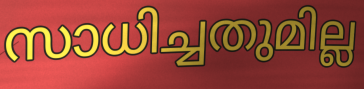
സാധിച്ചതുമില്ല